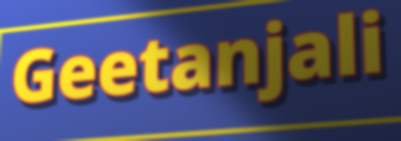
Geetanjali